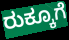
ರುಕ್ಕೂಗೆ